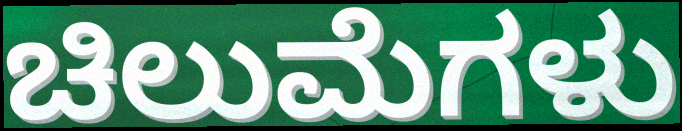
ಚಿಲುಮೆಗಳು